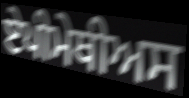
ਏਪੀਮੇਥੀਅਸ